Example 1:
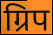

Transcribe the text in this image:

ग्रिप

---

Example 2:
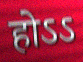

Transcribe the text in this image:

होऽऽ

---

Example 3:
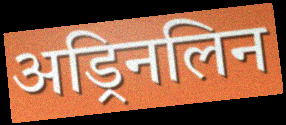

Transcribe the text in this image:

अड्रिनलिन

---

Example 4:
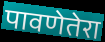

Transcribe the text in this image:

पावणेतेरा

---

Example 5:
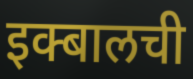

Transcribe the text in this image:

इक्बालची